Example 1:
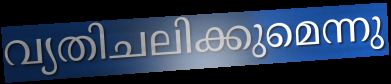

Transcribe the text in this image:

വ്യതിചലിക്കുമെന്നു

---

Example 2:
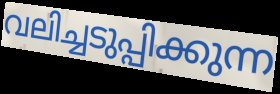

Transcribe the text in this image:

വലിച്ചടുപ്പിക്കുന്ന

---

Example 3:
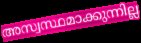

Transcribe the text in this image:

അസ്വസ്ഥമാക്കുന്നില്ല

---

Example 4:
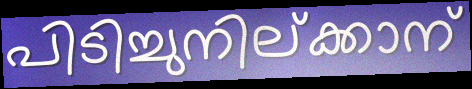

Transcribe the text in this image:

പിടിച്ചുനില്ക്കാന്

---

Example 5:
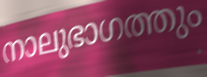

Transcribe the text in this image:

നാലുഭാഗത്തും